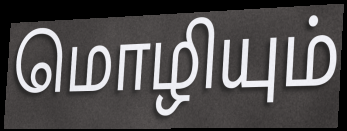
மொழியும்